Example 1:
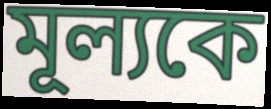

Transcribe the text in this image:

মূল্যকে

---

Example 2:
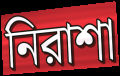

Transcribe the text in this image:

নিরাশা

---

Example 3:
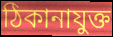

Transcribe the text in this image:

ঠিকানাযুক্ত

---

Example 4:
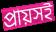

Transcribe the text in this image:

প্রায়সই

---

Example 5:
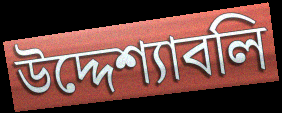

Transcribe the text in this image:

উদ্দেশ্যাবলি